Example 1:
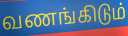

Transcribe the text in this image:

வணங்கிடும்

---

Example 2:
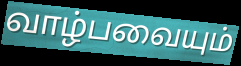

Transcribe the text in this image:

வாழ்பவையும்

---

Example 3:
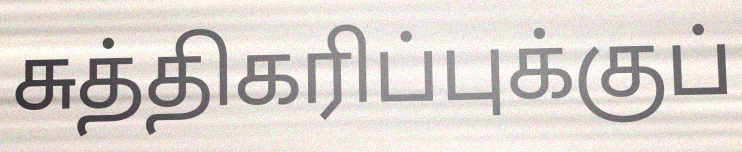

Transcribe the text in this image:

சுத்திகரிப்புக்குப்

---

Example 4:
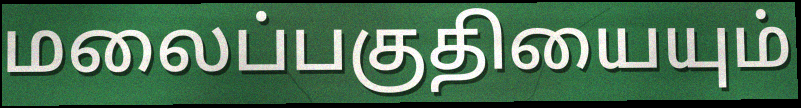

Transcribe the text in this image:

மலைப்பகுதியையும்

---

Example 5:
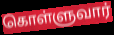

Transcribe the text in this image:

கொள்ளுவார்